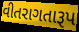
વીતરાગતારૂપ